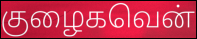
குழைகவென்